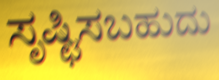
ಸೃಷ್ಟಿಸಬಹುದು